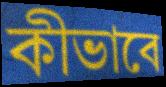
কীভাবে